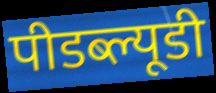
पीडब्ल्यूडी